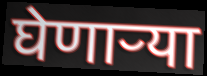
घेणाऱ्या